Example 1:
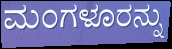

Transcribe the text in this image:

ಮಂಗಳೂರನ್ನು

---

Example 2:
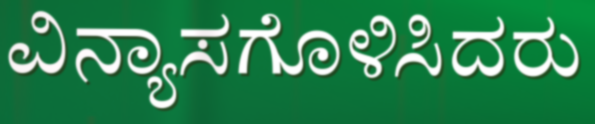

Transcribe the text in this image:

ವಿನ್ಯಾಸಗೊಳಿಸಿದರು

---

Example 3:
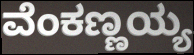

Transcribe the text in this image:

ವೆಂಕಣ್ಣಯ್ಯ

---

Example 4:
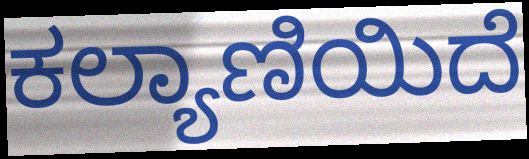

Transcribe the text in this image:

ಕಲ್ಯಾಣಿಯಿದೆ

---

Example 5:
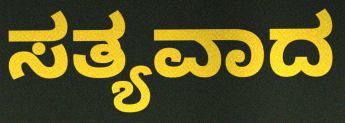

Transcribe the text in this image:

ಸತ್ಯವಾದ